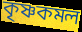
কৃষ্ণকমল